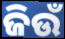
ଜିଉଁ